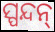
ସ୍ପନ୍ଦନ୍